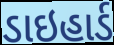
ડાઇહાર્ડ